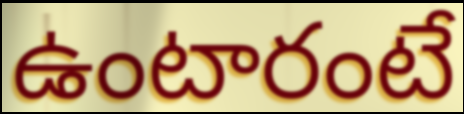
ఉంటారంటే